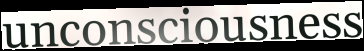
unconsciousness